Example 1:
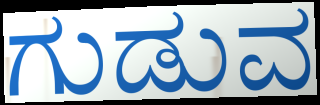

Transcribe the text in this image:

ಗುಡುವ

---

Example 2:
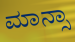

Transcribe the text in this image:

ಮಾನ್ಸಾ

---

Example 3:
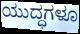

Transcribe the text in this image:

ಯುದ್ಧಗಳೂ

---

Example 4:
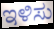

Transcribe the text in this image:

ಇಳಿಸು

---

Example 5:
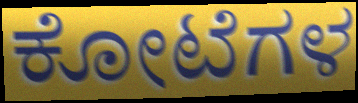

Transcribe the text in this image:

ಕೋಟೆಗಳ